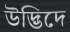
উদ্ভিদে